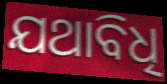
ଯଥାବିଧି